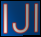
IJI